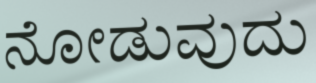
ನೋಡುವುದು